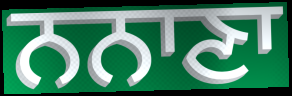
ਨਨਾਣਾ